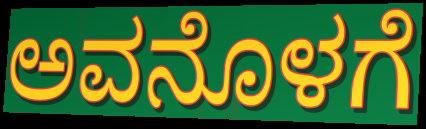
ಅವನೊಳಗೆ